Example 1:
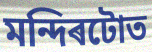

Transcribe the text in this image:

মন্দিৰটোত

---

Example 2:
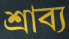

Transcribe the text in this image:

শ্ৰাব্য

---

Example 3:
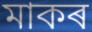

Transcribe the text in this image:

মাকৰ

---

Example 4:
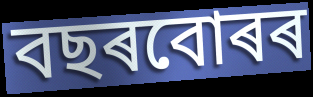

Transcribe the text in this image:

বছৰবোৰৰ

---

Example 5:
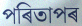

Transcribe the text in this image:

পৰিতাপৰ